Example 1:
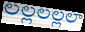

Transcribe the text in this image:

లల్లలల్లలా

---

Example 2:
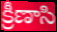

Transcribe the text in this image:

క్రీణాసి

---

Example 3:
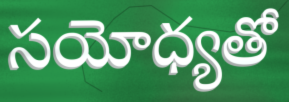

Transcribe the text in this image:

సయోధ్యతో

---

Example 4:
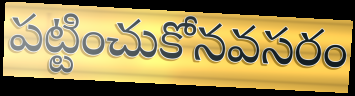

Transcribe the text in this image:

పట్టించుకోనవసరం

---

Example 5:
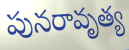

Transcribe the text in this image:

పునరావృత్య